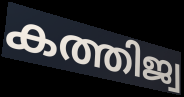
കത്തിജ്വ